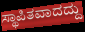
ಸ್ಥಾಪಿತವಾದದ್ದು